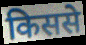
किससे